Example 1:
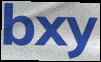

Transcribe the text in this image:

bxy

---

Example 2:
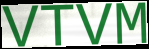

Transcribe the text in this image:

VTVM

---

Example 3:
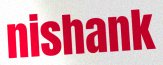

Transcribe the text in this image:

nishank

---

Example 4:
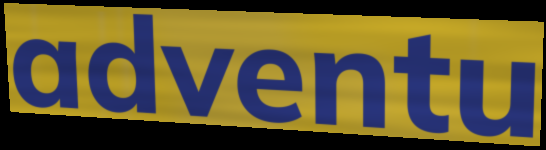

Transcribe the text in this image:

adventu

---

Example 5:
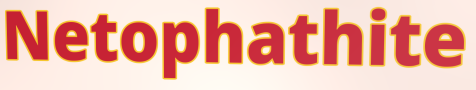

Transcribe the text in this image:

Netophathite